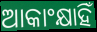
ଆକାଂକ୍ଷାହିଁ